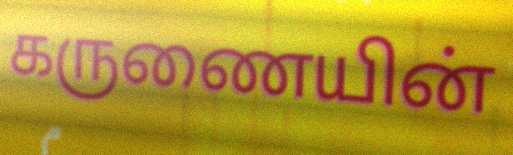
கருணையின்